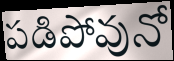
పడిపోవునో